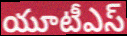
యూటీఎస్